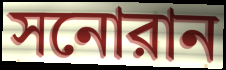
সনোরান